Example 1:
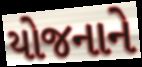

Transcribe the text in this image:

યોજનાને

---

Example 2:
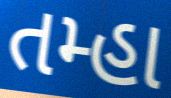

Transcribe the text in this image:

તમ્હા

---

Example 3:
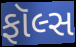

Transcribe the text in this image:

ફૉલ્સ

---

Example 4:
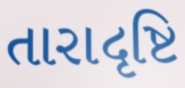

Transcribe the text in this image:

તારાદૃષ્ટિ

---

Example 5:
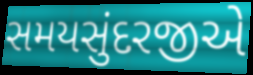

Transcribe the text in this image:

સમયસુંદરજીએ